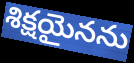
శిక్షయైనను